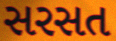
સરસત